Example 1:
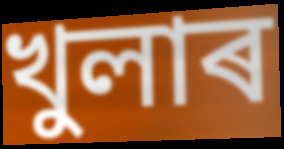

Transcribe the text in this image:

খুলাৰ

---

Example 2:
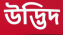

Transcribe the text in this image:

উদ্ভিদ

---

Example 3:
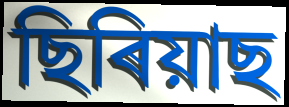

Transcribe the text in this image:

ছিৰিয়াছ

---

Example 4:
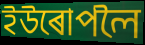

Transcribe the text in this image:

ইউৰোপলৈ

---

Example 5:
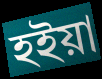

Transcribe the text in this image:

হইয়া